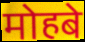
मोहबे